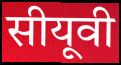
सीयूवी